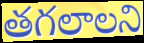
తగలాలని